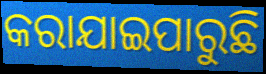
କରାଯାଇପାରୁଛି